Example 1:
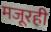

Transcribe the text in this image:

मजूरही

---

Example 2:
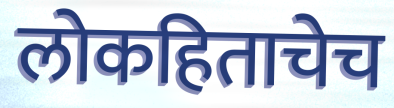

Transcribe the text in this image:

लोकहिताचेच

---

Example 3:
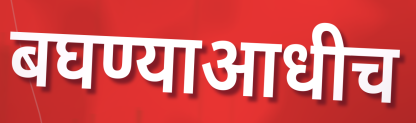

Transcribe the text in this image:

बघण्याआधीच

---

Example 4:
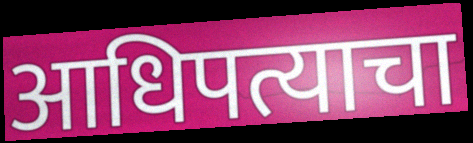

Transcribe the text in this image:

आधिपत्याचा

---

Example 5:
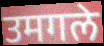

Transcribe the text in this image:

उमगले